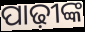
ପାଢ଼ୀଙ୍କ